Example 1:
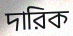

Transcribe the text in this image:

দারিক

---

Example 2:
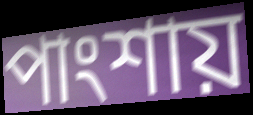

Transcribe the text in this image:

পাংশায়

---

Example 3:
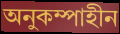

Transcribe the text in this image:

অনুকম্পাহীন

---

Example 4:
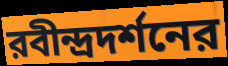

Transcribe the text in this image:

রবীন্দ্রদর্শনের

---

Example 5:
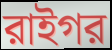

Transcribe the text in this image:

রাইগর